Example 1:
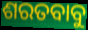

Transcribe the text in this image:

ଶରତବାବୁ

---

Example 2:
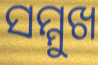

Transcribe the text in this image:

ସମ୍ମୁଖ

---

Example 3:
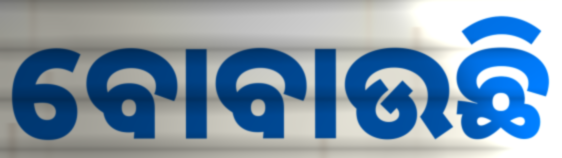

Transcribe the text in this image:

ବୋବାଉଛି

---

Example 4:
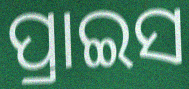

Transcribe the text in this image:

ପ୍ରାଇସ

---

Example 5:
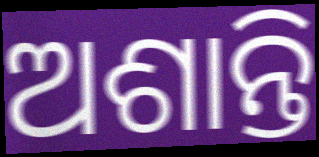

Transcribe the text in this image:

ଅଶାନ୍ତି